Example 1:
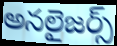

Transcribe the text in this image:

అనలైజర్స్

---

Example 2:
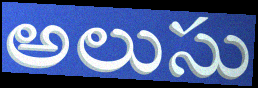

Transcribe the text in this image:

అలుసు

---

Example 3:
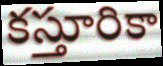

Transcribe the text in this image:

కస్తూరికా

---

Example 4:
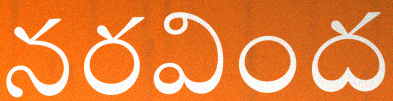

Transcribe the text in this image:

నరవింద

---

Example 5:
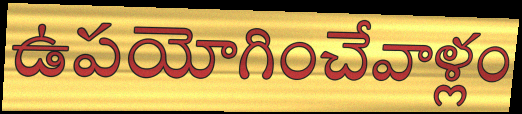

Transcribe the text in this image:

ఉపయోగించేవాళ్లం